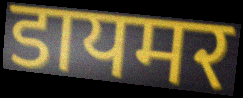
डायमर